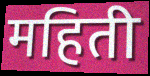
महिती